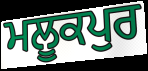
ਮਲੂਕਪੁਰ